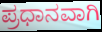
ಪ್ರಧಾನವಾಗಿ